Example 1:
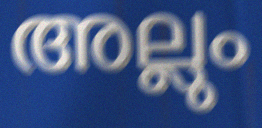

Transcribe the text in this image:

അല്ലും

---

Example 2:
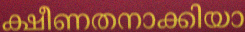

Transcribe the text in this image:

ക്ഷീണതനാക്കിയാ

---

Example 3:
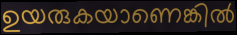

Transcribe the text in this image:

ഉയരുകയാണെങ്കിൽ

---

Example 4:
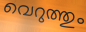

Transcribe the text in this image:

വെറുത്തും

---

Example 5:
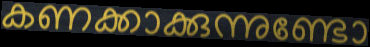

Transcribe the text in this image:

കണക്കാക്കുന്നുണ്ടോ